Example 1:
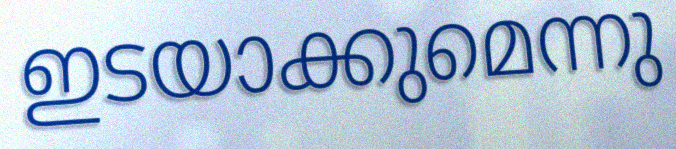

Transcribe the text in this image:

ഇടയാക്കുമെന്നു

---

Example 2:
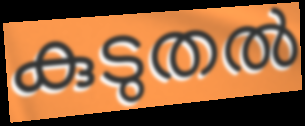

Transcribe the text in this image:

കുടുതൽ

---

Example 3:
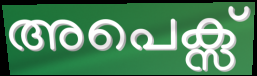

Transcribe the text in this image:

അപെക്സ്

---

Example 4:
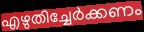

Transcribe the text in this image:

എഴുതിച്ചേർക്കണം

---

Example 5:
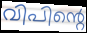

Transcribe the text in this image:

വിപിന്റെ